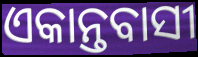
ଏକାନ୍ତବାସୀ